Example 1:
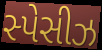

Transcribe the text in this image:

સ્પેસીઝ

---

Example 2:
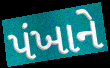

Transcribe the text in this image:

પંખાને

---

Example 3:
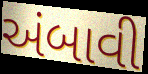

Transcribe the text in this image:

અંબાવી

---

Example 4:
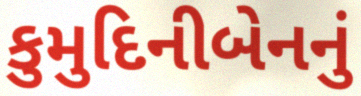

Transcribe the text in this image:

કુમુદિનીબેનનું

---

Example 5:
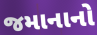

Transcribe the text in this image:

જમાનાનો